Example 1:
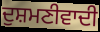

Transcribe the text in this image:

ਦੁਸ਼ਮਣੀਵਾਦੀ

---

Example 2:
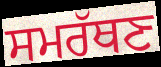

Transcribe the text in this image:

ਸਮਰੱਥਣ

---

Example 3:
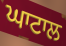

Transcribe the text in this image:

ਘਾਟਾਲ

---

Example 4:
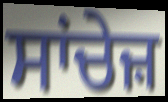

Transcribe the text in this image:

ਸਾਂਚੇਜ਼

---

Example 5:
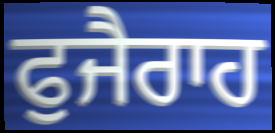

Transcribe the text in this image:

ਫੁਜੈਰਾਹ